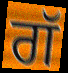
ਗੱ